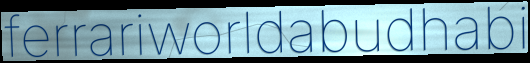
ferrariworldabudhabi